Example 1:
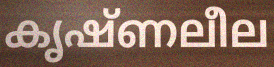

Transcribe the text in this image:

കൃഷ്ണലീല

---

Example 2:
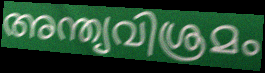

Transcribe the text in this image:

അന്ത്യവിശ്രമം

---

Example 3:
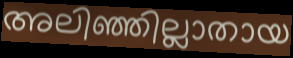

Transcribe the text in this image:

അലിഞ്ഞില്ലാതായ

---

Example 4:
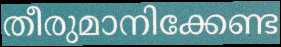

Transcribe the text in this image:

തീരുമാനിക്കേണ്ട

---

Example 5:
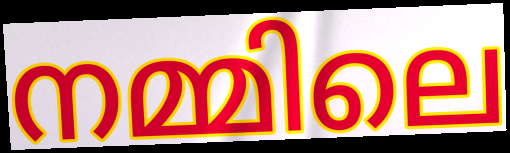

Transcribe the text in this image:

നമ്മിലെ